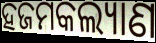
ହଜମକଲ୍ୟାଣ